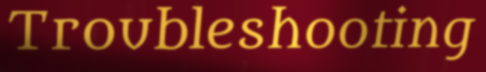
Troubleshooting